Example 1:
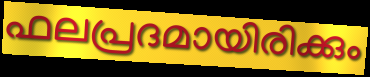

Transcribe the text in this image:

ഫലപ്രദമായിരിക്കും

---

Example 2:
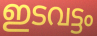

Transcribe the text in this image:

ഇടവട്ടം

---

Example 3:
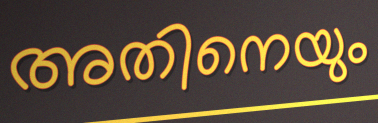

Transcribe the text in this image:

അതിനെയും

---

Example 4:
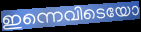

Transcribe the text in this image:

ഇന്നെവിടെയോ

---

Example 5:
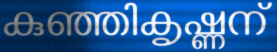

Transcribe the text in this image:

കുഞ്ഞികൃഷ്ണന്